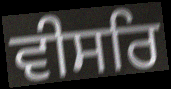
ਵੀਸਰਿ